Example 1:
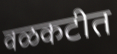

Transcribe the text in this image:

वळकटीत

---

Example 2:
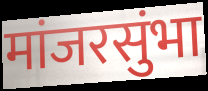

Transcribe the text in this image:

मांजरसुंभा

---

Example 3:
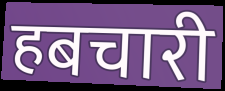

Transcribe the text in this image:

हबचारी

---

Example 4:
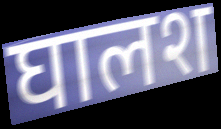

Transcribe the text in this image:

घालश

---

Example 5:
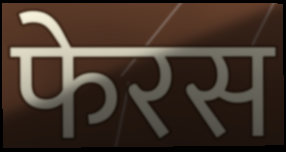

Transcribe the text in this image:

फेरस